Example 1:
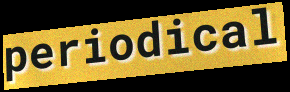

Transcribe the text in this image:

periodical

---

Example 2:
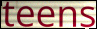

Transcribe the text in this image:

teens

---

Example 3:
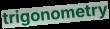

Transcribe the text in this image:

trigonometry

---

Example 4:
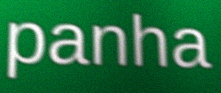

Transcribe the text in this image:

panha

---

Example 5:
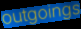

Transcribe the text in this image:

outgoings